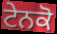
ਟੇਨਕੋ